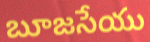
బూజసేయు